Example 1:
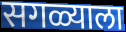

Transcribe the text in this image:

सगळ्याला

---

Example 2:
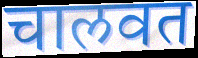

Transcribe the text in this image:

चालवत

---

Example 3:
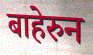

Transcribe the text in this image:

बाहेरुन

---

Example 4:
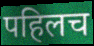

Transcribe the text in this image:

पहिलच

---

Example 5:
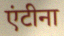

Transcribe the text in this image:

एंटीना